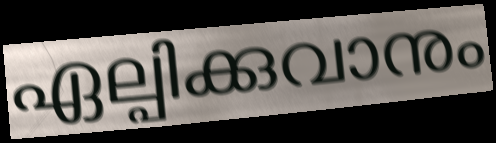
ഏല്പിക്കുവാനും